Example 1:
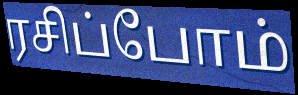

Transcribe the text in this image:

ரசிப்போம்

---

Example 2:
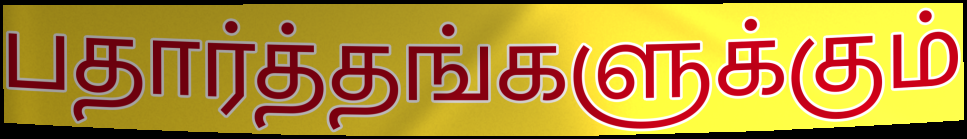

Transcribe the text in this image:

பதார்த்தங்களுக்கும்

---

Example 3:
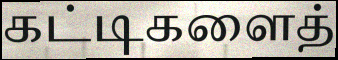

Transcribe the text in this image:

கட்டிகளைத்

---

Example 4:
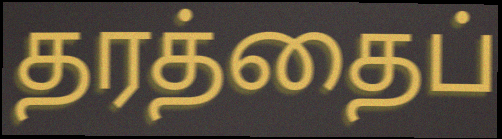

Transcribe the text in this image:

தரத்தைப்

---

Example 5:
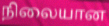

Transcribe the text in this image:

நிலையான